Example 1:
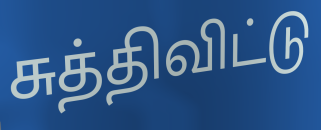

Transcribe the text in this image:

சுத்திவிட்டு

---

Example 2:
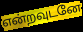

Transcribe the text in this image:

என்றவுடனே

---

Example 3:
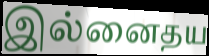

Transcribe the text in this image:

இல்னைதய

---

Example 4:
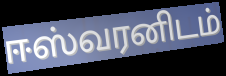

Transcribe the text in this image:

ஈஸ்வரனிடம்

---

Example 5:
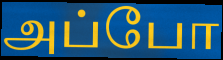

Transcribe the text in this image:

அப்போ